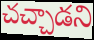
చచ్చాడని